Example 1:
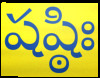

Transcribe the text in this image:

షష్ఠిః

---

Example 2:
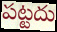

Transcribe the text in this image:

పట్టదు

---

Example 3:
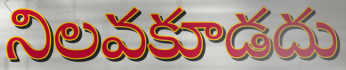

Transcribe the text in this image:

నిలవకూడదు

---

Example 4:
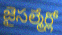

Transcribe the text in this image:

జైసల్మేర్లో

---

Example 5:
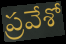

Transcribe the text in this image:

ప్రవేశో